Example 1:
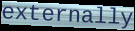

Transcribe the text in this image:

externally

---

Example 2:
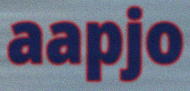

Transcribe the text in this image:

aapjo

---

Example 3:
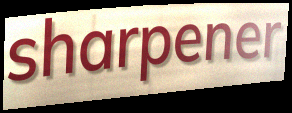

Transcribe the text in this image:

sharpener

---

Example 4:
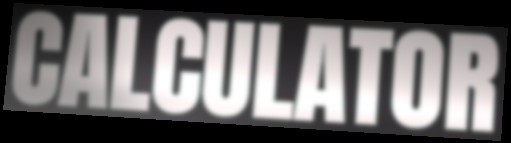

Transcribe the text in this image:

CALCULATOR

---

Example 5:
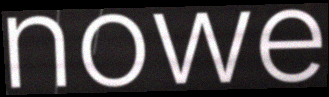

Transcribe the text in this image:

nowe